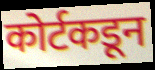
कोर्टकडून